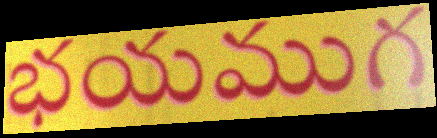
భయముగ